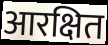
आरक्षित